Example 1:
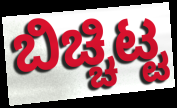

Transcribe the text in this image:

ಬಿಚ್ಚಿಟ್ಟ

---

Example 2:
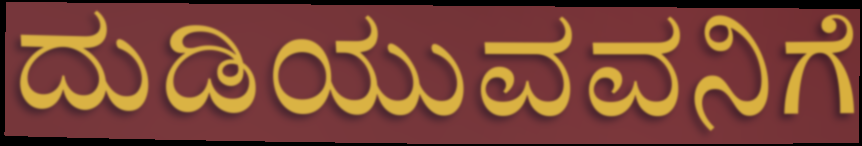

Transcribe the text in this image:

ದುಡಿಯುವವನಿಗೆ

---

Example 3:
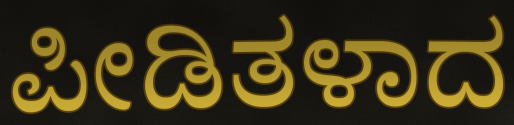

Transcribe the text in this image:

ಪೀಡಿತಳಾದ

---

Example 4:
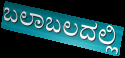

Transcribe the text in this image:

ಬಲಾಬಲದಲ್ಲಿ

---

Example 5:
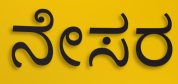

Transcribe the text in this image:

ನೇಸರ